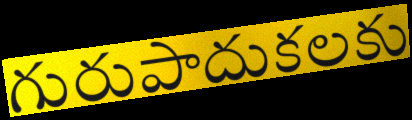
గురుపాదుకలకు